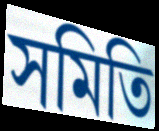
সমিতি